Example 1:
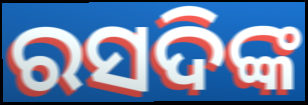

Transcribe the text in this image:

ରସଦିଙ୍କ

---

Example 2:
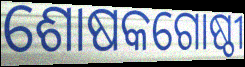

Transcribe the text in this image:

ଶୋଷକଗୋଷ୍ଠୀ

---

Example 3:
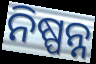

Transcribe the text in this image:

ନିଷ୍ପନ୍ନ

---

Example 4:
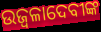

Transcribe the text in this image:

ଉଜ୍ୱଳାଦେବୀଙ୍କ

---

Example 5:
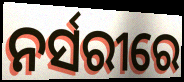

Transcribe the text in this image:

ନର୍ସରୀରେ